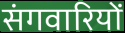
संगवारियों